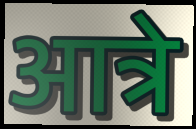
आत्रे